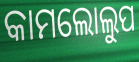
କାମଲୋଲୁପ